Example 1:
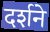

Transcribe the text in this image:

दर्शने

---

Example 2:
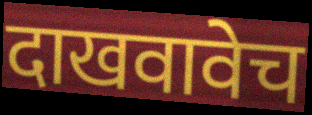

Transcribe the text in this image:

दाखवावेच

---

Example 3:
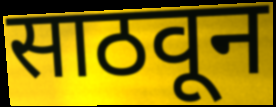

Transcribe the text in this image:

साठवून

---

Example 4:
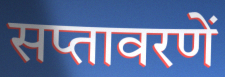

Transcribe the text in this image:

सप्तावरणें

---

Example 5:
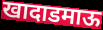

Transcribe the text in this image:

खादाडमाऊ